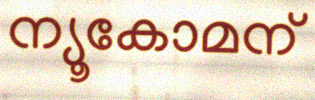
ന്യൂകോമന്